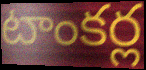
టాంకర్ల